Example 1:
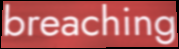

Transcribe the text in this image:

breaching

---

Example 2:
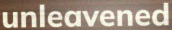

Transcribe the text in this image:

unleavened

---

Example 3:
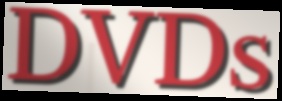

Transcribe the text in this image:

DVDs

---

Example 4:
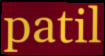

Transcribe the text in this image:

patil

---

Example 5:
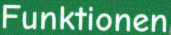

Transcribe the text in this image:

Funktionen